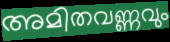
അമിതവണ്ണവും